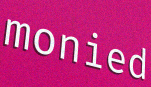
monied